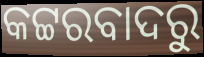
କଟ୍ଟରବାଦରୁ